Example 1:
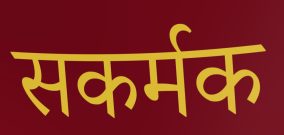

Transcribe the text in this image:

सकर्मक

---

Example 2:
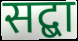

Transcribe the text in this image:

सद्बा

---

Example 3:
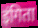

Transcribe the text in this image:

इंगिता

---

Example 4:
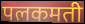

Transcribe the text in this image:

पलकमती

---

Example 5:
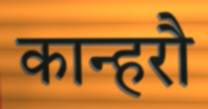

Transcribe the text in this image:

कान्हरौ